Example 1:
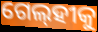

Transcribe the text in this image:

ଗେଲ୍‌ହୀକୁ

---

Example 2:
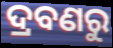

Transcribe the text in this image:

ଦ୍ରବଣରୁ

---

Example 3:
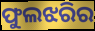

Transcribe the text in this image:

ଫୁଲଝରିର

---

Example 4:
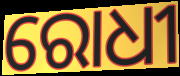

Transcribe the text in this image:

ରୋଧୀ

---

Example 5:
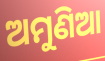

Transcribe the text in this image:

ଅମୁଣିଆ